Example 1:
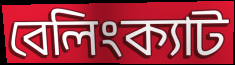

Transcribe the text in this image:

বেলিংক্যাট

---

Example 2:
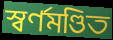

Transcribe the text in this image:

স্বর্ণমণ্ডিত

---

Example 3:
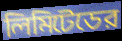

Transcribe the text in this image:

লিমিটেডের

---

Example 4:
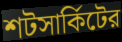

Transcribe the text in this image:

শটসার্কিটের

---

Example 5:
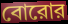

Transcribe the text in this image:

বোরোর